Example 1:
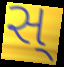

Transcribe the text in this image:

સ્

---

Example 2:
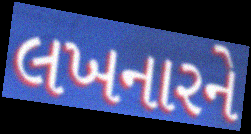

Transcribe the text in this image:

લખનારને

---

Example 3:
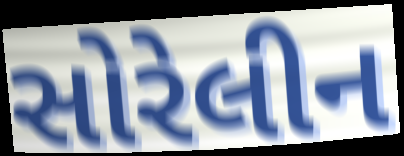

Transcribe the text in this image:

સોરેલીન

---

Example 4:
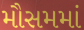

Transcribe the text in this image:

મૌસમમાં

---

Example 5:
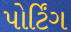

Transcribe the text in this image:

પોર્ટિંગ